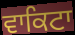
ਵਾਕਿਟਾ